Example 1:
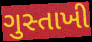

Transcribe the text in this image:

ગુસ્તાખી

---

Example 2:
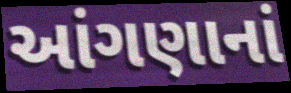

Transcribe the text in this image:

આંગણાનાં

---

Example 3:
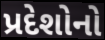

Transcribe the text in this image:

પ્રદેશોનો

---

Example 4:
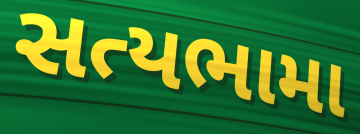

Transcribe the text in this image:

સત્યભામા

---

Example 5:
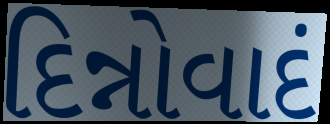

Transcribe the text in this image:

દિન્નોવાદં